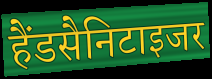
हैंडसैनिटाइजर